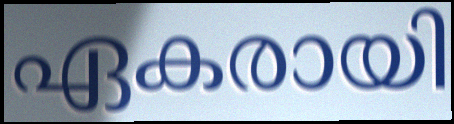
ഏകരായി